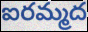
ఐరమ్మద